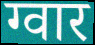
ग्वार